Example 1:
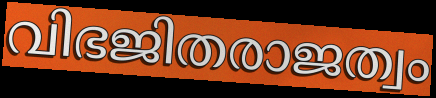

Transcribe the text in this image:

വിഭജിതരാജത്വം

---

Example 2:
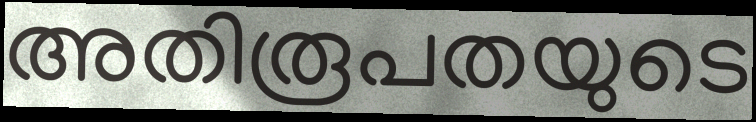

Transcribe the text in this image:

അതിരൂപതയുടെ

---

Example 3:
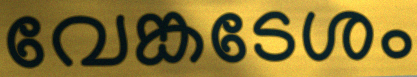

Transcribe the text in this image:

വേങ്കടേശം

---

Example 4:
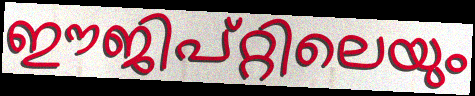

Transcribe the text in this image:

ഈജിപ്റ്റിലെയും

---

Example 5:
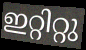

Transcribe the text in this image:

ഇറ്റിറ്റു